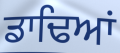
ਡਾਢਿਆਂ